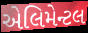
એલિમેન્ટલ